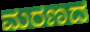
ಮರಣದ